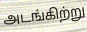
அடங்கிற்று